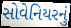
સોવેનિયરનું